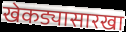
खेकड्यासारखा